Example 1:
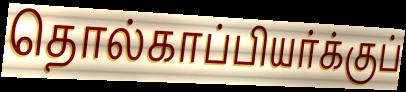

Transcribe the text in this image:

தொல்காப்பியர்க்குப்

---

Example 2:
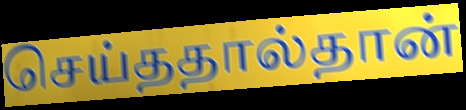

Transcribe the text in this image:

செய்ததால்தான்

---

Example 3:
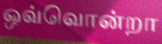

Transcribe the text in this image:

ஒவ்வொன்றா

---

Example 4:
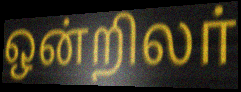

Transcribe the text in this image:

ஒன்றிலர்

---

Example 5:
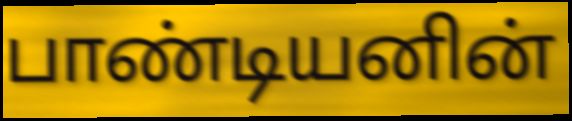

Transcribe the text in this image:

பாண்டியனின்